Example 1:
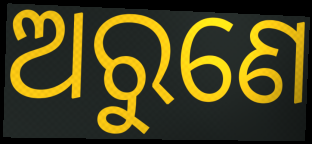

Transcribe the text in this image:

ଅରୁଣେ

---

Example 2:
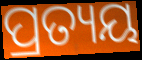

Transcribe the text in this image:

ପ୍ରତ୍ୟୟ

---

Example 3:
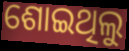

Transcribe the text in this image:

ଶୋଇଥିଲୁ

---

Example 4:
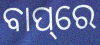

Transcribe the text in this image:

ବାପ୍‌ରେ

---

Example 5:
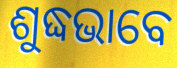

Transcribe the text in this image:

ଶୁଦ୍ଧଭାବେ